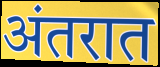
अंतरात